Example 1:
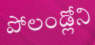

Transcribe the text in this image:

పోలండ్లోని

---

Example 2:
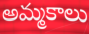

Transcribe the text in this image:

అమ్మకాలు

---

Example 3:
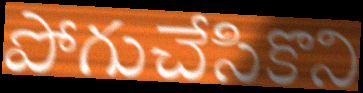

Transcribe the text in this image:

పోగుచేసికొని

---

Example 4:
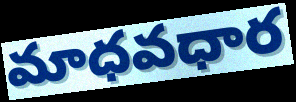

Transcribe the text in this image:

మాధవధార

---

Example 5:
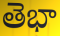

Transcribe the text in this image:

తెభా